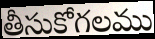
తీసుకోగలము